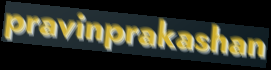
pravinprakashan